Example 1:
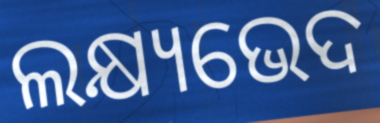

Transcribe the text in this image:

ଲକ୍ଷ୍ୟଭେଦ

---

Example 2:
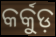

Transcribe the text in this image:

କର୍କୁଡ଼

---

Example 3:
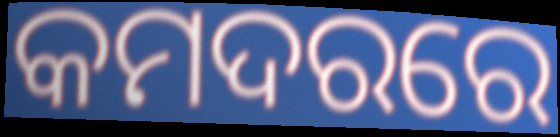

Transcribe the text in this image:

କମଦରରେ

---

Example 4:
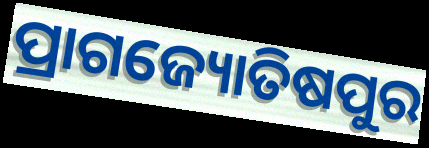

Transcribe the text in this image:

ପ୍ରାଗଜ୍ୟୋତିଷପୁର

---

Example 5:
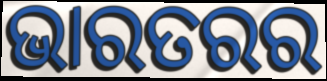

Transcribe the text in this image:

ଭାରତରର